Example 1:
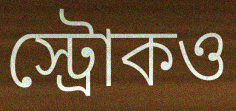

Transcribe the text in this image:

স্ট্রোকও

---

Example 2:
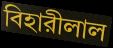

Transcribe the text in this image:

বিহারীলাল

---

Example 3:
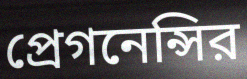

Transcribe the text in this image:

প্রেগনেন্সির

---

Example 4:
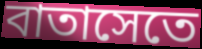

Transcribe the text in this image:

বাতাসেতে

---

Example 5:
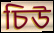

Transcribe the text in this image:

চিউ